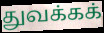
துவக்கக்